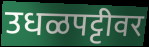
उधळपट्टीवर